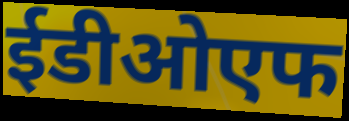
ईडीओएफ